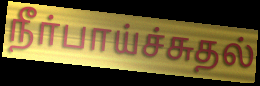
நீர்பாய்ச்சுதல்